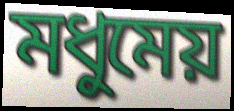
মধুমেয়